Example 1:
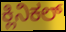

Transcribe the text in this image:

ಕ್ಲಿನಿಕಲ್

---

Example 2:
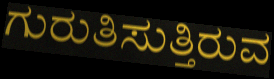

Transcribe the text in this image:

ಗುರುತಿಸುತ್ತಿರುವ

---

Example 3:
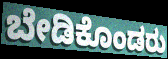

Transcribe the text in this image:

ಬೇಡಿಕೊಂಡರು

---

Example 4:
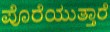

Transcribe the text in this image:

ಪೊರೆಯುತ್ತಾರೆ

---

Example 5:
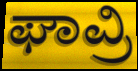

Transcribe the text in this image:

ಘಾವ್ರಿ